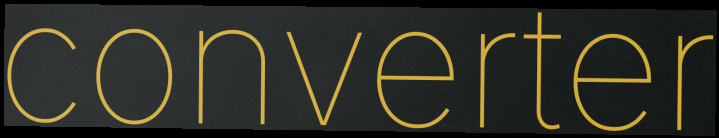
converter